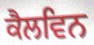
ਕੈਲਵਿਨ